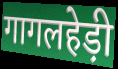
गागलहेड़ी